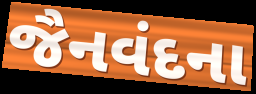
જૈનવંદના